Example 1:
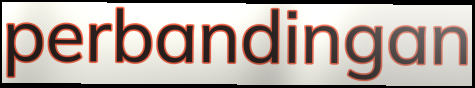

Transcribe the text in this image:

perbandingan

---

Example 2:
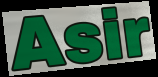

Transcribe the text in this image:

Asir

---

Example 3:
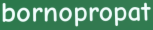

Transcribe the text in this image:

bornopropat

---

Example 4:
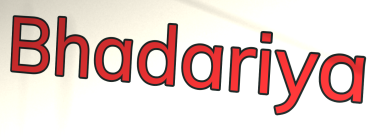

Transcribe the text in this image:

Bhadariya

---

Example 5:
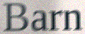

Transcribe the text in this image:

Barn